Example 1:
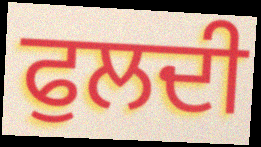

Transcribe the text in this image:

ਫੁਲਦੀ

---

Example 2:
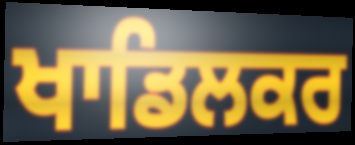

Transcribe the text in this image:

ਖਾਡਿਲਕਰ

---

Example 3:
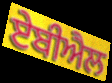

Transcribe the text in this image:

ਏਬੀਐਲ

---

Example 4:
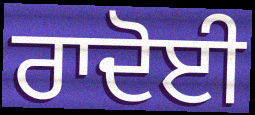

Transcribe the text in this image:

ਰਾਦੋਈ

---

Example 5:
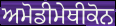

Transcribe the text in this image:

ਅਮੋਡੀਮੇਥੀਕੋਨ